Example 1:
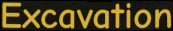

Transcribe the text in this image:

Excavation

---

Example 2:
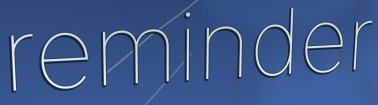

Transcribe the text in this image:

reminder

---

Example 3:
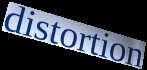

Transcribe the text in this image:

distortion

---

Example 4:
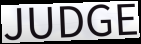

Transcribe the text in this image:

JUDGE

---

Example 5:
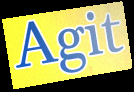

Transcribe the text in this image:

Agit